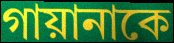
গায়ানাকে